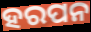
ହରପନ